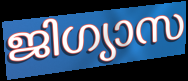
ജിഗ്യാസ